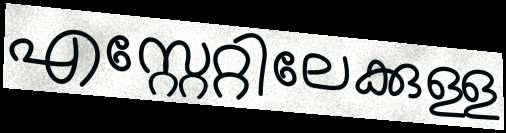
എസ്റ്റേറ്റിലേക്കുള്ള